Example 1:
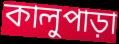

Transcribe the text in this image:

কালুপাড়া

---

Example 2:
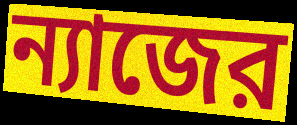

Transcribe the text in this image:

ন্যাজের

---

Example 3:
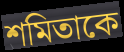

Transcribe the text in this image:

শমিতাকে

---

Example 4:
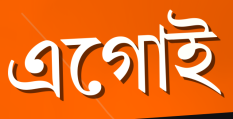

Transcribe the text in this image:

এগোই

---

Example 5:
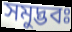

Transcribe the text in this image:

সমুদ্ভবঃ